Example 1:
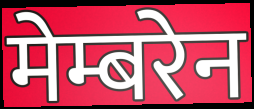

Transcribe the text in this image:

मेम्बरेन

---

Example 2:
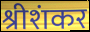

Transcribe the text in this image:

श्रीशंकर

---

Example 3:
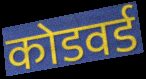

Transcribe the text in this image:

कोडवर्ड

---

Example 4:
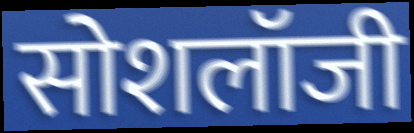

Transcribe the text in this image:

सोशलॉजी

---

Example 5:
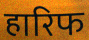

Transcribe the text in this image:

हारिफ